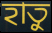
হাতু